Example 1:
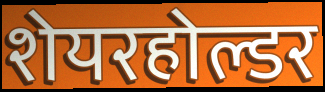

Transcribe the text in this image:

शेयरहोल्डर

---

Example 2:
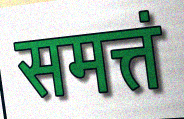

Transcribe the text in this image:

समत्तं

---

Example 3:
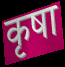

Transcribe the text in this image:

कृषा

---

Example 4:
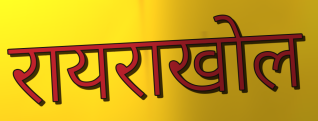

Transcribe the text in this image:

रायराखोल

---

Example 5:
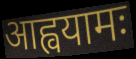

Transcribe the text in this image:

आह्वयामः